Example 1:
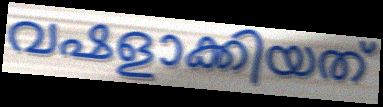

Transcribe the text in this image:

വഷളാക്കിയത്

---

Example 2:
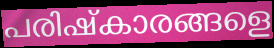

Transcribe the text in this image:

പരിഷ്‌കാരങ്ങളെ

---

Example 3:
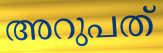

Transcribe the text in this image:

അറുപത്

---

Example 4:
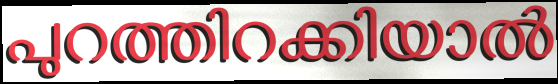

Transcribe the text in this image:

പുറത്തിറക്കിയാൽ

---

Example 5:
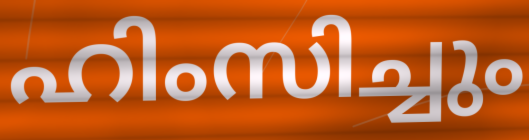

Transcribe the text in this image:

ഹിംസിച്ചും